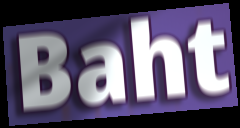
Baht